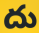
దు